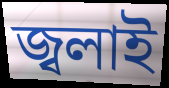
জ্বলাই